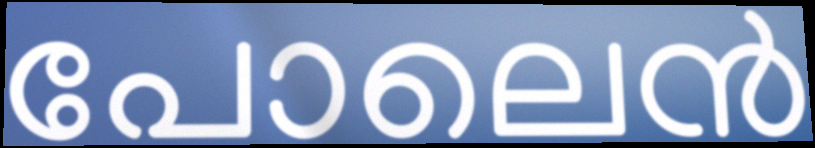
പോലെൻ